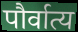
पौर्वात्य